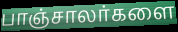
பாஞ்சாலர்களை